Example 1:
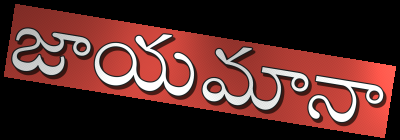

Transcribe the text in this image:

జాయమానా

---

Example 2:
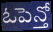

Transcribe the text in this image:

ఓపెన్తో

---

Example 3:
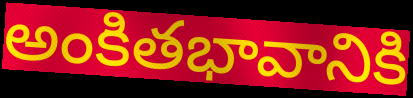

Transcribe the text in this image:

అంకితభావానికి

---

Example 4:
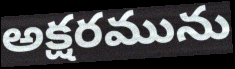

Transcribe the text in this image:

అక్షరమును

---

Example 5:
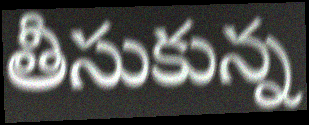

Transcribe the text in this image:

తీసుకున్న